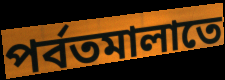
পর্বতমালাতে